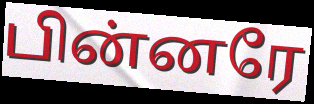
பின்னரே